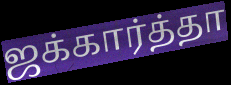
ஜக்கார்த்தா